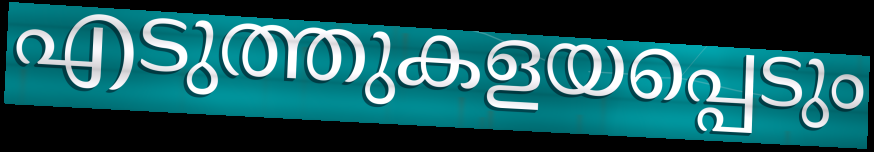
എടുത്തുകളയപ്പെടും